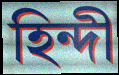
হিন্দী